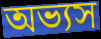
অভ্যস